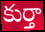
కుర్తా